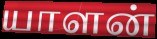
யாளன்